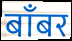
बाँबर